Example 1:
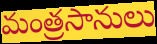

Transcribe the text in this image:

మంత్రసానులు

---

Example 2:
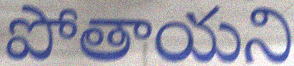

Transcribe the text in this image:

పోతాయని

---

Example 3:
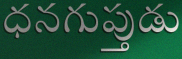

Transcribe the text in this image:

ధనగుప్తుడు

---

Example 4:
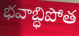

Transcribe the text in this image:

భవాబ్ధిపోత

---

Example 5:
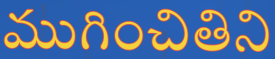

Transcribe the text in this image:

ముగించితిని